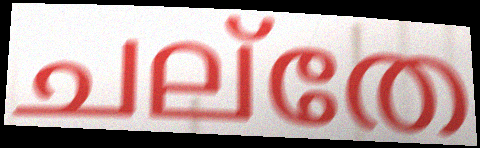
ചല്തേ